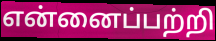
என்னைப்பற்றி